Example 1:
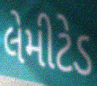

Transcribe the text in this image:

લેમીટેડ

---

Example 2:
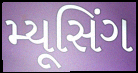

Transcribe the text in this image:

મ્યૂસિંગ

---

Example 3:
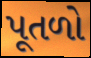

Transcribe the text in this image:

પૂતળો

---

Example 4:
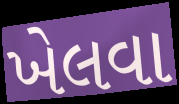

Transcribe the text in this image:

ખેલવા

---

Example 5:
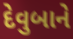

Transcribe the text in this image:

દેવુબાને